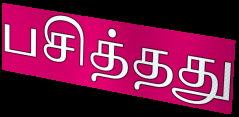
பசித்தது